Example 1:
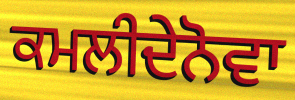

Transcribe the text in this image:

ਕਮਲੀਦੇਨੋਵਾ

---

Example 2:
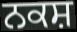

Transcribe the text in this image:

ਨਕਸ਼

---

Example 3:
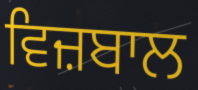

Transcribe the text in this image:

ਵਿਜ਼ਬਾਲ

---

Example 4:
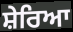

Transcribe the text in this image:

ਸ਼ੇਰਿਆ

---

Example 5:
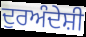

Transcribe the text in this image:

ਦੁਰਅੰਦੇਸ਼ੀ